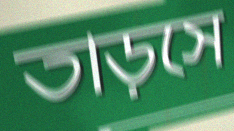
তাড়সে